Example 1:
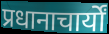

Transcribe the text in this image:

प्रधानाचार्यों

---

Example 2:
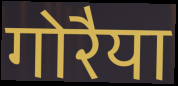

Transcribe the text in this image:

गोरैया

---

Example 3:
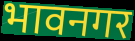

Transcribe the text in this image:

भावनगर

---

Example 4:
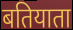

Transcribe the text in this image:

बतियाता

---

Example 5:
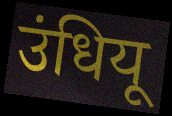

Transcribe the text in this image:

उंधियू